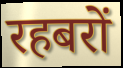
रहबरों